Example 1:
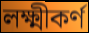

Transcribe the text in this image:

লক্ষ্মীকর্ণ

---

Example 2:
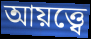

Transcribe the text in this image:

আয়ত্ত্বে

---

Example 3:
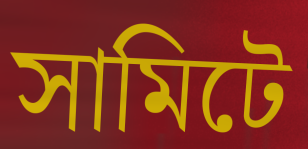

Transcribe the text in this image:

সামিটে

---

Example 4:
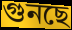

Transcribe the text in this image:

গুনছে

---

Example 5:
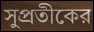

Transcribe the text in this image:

সুপ্রতীকের